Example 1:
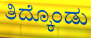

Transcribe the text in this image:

ತಿದ್ಕೊಂಡು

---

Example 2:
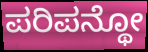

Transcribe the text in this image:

ಪರಿಪನ್ಥೋ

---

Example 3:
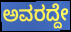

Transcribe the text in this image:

ಅವರದ್ದೇ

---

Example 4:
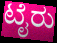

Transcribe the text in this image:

ಟೈರು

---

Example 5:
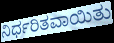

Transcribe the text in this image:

ನಿರ್ಧರಿತವಾಯಿತು